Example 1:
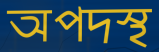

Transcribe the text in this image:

অপদস্থ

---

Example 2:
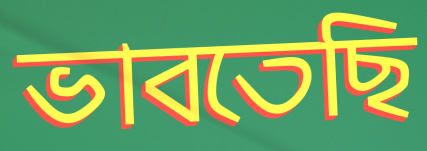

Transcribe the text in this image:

ভাবতেছি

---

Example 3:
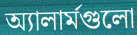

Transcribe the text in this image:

অ্যালার্মগুলো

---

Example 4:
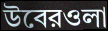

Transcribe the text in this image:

উবেরওলা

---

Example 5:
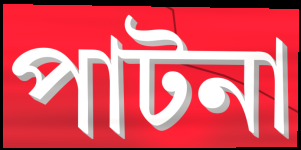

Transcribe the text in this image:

পাটনা